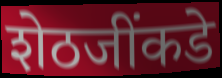
शेठजींकडे